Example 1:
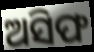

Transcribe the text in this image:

ଅସିଫ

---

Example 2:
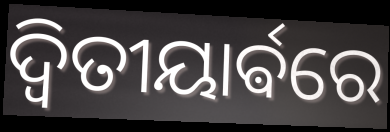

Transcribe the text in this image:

ଦ୍ଵିତୀୟାର୍ଵରେ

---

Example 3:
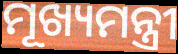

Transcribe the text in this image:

ମୂଖ୍ୟମନ୍ତ୍ରୀ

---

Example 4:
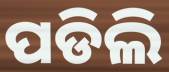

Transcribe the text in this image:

ପଡିଲି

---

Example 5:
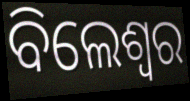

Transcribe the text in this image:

ବିଲେଶ୍ଵର